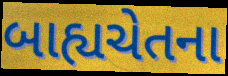
બાહ્યચેતના